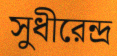
সুধীরেন্দ্র